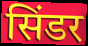
सिंडर